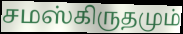
சமஸ்கிருதமும்